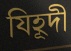
যিহূদী